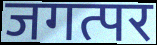
जगत्पर